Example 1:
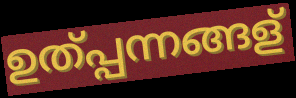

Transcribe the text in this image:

ഉത്പ്പന്നങ്ങള്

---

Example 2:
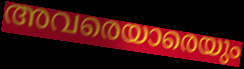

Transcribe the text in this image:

അവരെയാരെയും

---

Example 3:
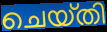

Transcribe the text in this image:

ചെയ്‌തി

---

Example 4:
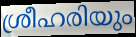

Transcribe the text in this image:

ശ്രീഹരിയും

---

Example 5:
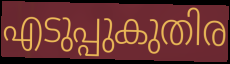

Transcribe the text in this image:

എടുപ്പുകുതിര